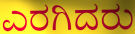
ಎರಗಿದರು